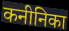
कनीनिका